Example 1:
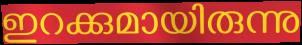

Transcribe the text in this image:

ഇറക്കുമായിരുന്നു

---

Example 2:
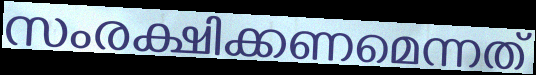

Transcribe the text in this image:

സംരക്ഷിക്കണമെന്നത്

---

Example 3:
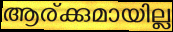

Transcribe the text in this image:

ആര്ക്കുമായില്ല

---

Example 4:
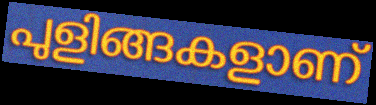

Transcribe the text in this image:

പുളിങ്ങകളാണ്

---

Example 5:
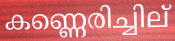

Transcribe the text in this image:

കണ്ണെരിച്ചില്